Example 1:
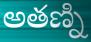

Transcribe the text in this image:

అతణ్ని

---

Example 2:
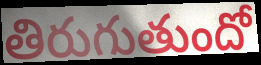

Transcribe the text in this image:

తిరుగుతుందో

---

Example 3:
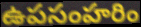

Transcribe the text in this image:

ఉపసంహరిం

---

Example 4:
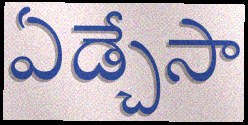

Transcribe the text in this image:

ఏడ్చేసా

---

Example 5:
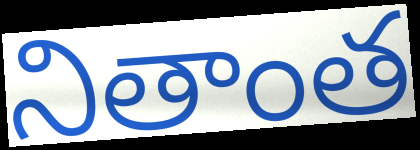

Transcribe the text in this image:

నితాంత